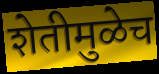
शेतीमुळेच